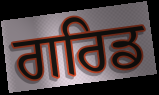
ਗਰਿਡ